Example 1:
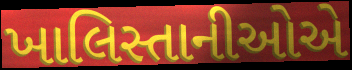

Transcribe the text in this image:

ખાલિસ્તાનીઓએ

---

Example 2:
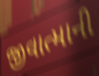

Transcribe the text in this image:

જીવાત્માની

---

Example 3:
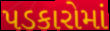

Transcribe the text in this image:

પડકારોમાં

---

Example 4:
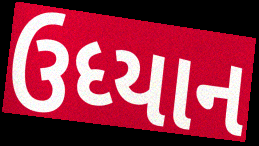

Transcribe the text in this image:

ઉધ્યાન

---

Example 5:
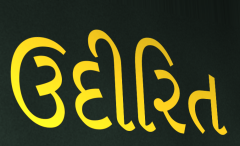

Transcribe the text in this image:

ઉદીરિત